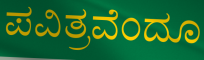
ಪವಿತ್ರವೆಂದೂ